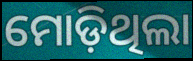
ମୋଡ଼ିଥିଲା